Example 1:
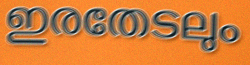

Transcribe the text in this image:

ഇരതേടലും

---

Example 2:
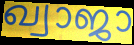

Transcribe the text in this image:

ഖ്വാജാ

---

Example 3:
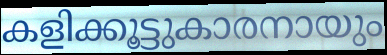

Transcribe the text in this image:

കളിക്കൂട്ടുകാരനായും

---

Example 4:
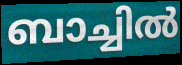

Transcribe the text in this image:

ബാച്ചിൽ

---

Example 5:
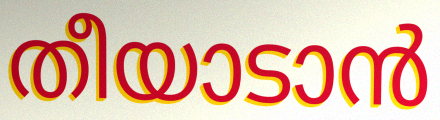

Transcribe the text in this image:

തീയാടാൻ